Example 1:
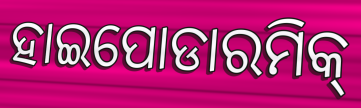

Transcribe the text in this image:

ହାଇପୋଡାରମିକ୍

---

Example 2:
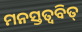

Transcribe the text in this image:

ମନସ୍ତତ୍ୱବିତ୍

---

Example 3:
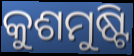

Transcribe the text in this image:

କୁଶମୁଷ୍ଟି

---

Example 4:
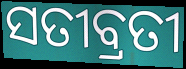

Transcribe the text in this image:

ସତୀବ୍ରତୀ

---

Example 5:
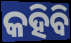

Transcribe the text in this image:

କହିବି